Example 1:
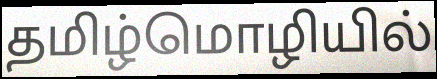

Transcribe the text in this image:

தமிழ்மொழியில்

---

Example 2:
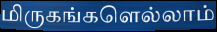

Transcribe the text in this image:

மிருகங்களெல்லாம்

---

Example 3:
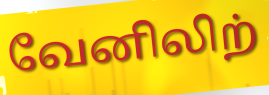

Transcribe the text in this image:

வேனிலிற்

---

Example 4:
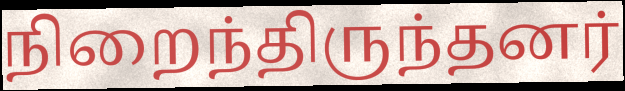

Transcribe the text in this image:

நிறைந்திருந்தனர்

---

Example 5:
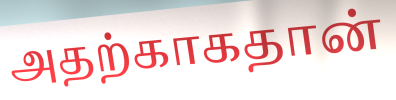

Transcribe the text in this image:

அதற்காகதான்